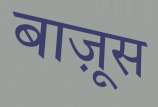
बाज़ूस